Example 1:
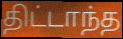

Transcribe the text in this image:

திட்டாந்த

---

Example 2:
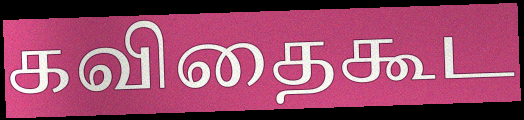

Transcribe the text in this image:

கவிதைகூட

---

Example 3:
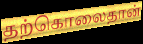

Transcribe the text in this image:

தற்கொலைதான்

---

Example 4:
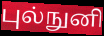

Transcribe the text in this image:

புல்நுனி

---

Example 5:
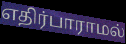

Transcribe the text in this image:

எதிர்பாராமல்